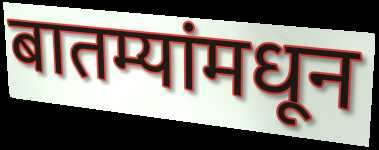
बातम्यांमधून